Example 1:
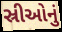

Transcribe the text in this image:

સ્રીઓનું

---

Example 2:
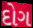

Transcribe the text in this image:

દોગ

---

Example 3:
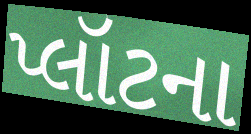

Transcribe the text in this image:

પ્લૉટના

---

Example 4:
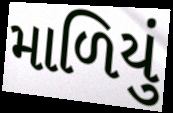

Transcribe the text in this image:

માળિયું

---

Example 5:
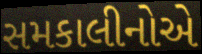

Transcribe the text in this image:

સમકાલીનોએ